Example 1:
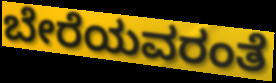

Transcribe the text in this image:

ಬೇರೆಯವರಂತೆ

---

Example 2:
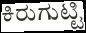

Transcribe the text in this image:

ಕಿರುಗುಟ್ಟಿ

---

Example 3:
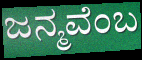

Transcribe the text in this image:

ಜನ್ಮವೆಂಬ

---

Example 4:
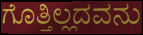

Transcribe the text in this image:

ಗೊತ್ತಿಲ್ಲದವನು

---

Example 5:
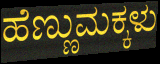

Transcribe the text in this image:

ಹೆಣ್ಣುಮಕ್ಕಳು